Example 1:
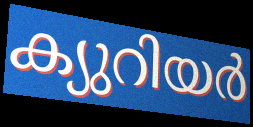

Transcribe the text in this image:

ക്യുറിയർ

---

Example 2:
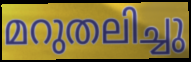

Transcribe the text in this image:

മറുതലിച്ചു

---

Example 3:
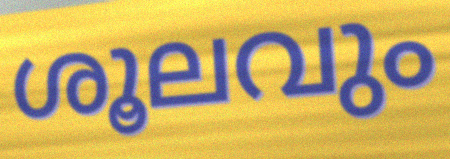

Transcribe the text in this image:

ശൂലവും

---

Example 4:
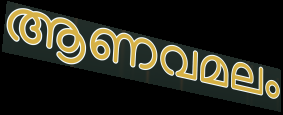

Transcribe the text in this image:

ആണവമലം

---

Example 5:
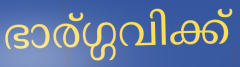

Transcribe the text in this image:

ഭാര്ഗ്ഗവിക്ക്